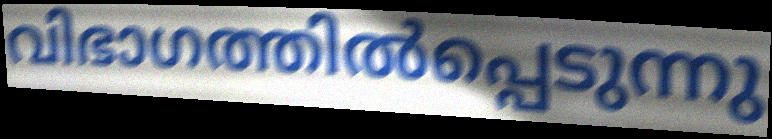
വിഭാഗത്തിൽപ്പെടുന്നു